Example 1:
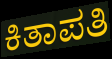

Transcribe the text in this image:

ಕಿತಾಪತಿ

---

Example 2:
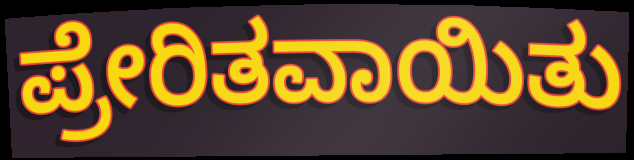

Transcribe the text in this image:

ಪ್ರೇರಿತವಾಯಿತು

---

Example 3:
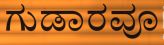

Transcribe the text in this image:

ಗುಡಾರವೂ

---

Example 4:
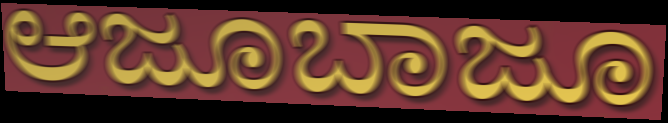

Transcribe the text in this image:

ಆಜೂಬಾಜೂ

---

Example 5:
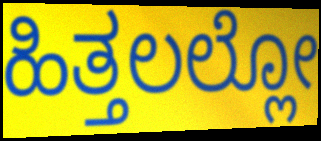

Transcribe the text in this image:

ಹಿತ್ತಲಲ್ಲೋ